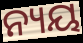
ନ୍ୟୟ